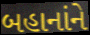
બહાનાંને